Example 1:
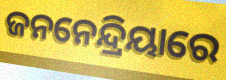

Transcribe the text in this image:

ଜନନେନ୍ଦ୍ରିୟାରେ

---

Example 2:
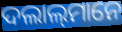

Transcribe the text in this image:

ଦଲାଲ୍‍ମାନେ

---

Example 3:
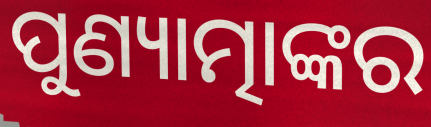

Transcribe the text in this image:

ପୁଣ୍ୟାତ୍ମାଙ୍କର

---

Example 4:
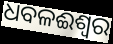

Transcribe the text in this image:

ଧବଳଈଶ୍ବର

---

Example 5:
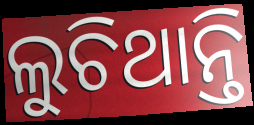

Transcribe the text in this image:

ଲୁଚିଥାନ୍ତି